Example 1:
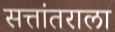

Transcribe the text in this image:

सत्तांतराला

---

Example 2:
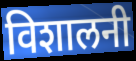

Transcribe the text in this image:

विशालनी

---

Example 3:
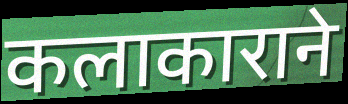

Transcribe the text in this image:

कलाकाराने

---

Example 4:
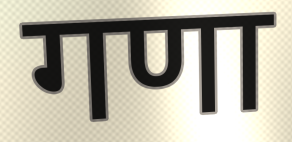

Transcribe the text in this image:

गणा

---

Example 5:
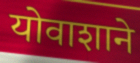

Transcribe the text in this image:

योवाशाने